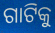
ଗାଟିକୁ